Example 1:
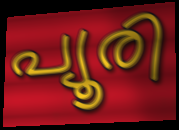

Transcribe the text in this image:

പ്യൂരി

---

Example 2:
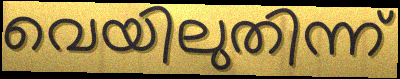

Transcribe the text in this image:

വെയിലുതിന്ന്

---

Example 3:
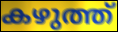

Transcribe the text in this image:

കഴുത്ത്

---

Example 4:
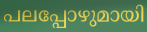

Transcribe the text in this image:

പലപ്പോഴുമായി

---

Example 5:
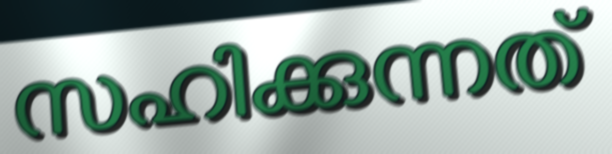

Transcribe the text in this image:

സഹിക്കുന്നത്